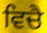
ਵਿਚੈ